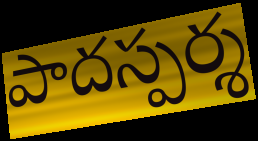
పాదస్పర్శ